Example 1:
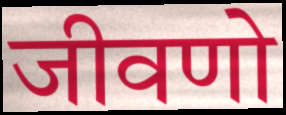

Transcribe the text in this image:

जीवणो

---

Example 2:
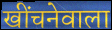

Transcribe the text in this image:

खींचनेवाला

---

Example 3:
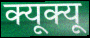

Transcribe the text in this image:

क्यूक्यू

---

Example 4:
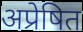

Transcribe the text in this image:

अप्रेषित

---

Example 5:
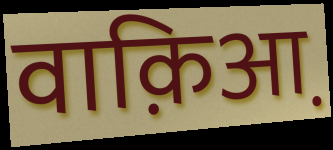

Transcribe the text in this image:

वाक़िआ़